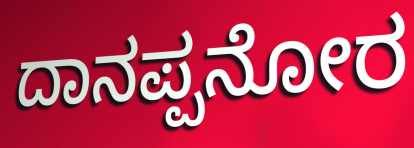
ದಾನಪ್ಪನೋರ